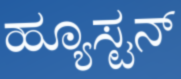
ಹ್ಯೂಸ್ಟನ್